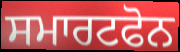
ਸਮਾਰਟਫੋਨ